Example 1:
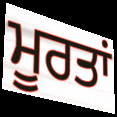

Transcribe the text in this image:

ਮੂਰਤਾਂ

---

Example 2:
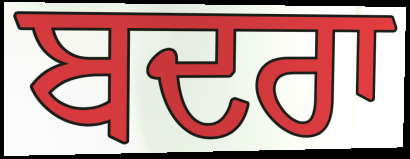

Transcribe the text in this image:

ਬਦਰਾ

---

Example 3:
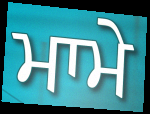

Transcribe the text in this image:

ਮਾਮੇ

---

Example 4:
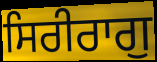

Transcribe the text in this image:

ਸਿਰੀਰਾਗੁ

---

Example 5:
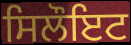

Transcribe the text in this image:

ਸਿਲੌਇਟ